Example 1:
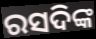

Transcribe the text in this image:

ରସଦିଙ୍କ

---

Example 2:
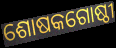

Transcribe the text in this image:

ଶୋଷକଗୋଷ୍ଠୀ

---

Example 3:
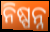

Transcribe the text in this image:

ନିଷ୍ପନ୍ନ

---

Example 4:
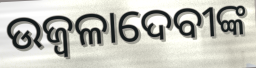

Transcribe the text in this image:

ଉଜ୍ୱଳାଦେବୀଙ୍କ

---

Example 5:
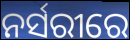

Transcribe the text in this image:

ନର୍ସରୀରେ